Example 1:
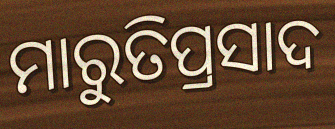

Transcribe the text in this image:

ମାରୁତିପ୍ରସାଦ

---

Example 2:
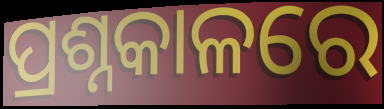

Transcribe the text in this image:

ପ୍ରଶ୍ନକାଳରେ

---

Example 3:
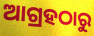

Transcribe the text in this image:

ଆଗ୍ରହଠାରୁ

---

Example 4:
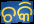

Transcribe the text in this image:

ଚକି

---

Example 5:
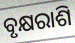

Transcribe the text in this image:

ବୃକ୍ଷରାଶି